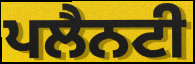
ਪਲੈਨਟੀ